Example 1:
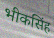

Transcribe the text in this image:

भीकसिंह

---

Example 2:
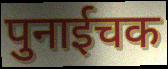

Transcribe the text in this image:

पुनाईचक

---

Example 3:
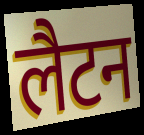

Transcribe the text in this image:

लैटन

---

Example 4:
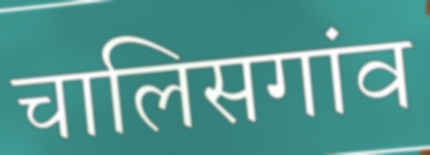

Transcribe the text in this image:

चालिसगांव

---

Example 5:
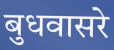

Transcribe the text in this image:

बुधवासरे